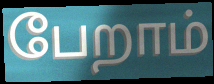
பேறாம்